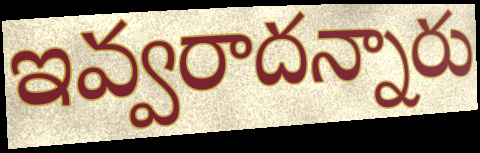
ఇవ్వరాదన్నారు